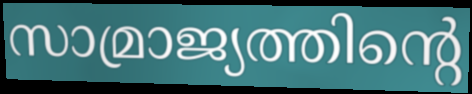
സാമ്രാജ്യത്തിന്റെ